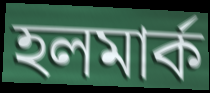
হলমার্ক